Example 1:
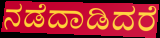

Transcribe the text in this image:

ನಡೆದಾಡಿದರೆ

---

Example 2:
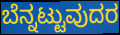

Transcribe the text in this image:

ಬೆನ್ನಟ್ಟುವುದರ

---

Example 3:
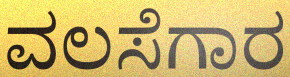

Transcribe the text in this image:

ವಲಸೆಗಾರ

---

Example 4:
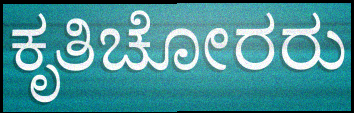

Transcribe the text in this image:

ಕೃತಿಚೋರರು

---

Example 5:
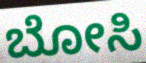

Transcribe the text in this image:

ಬೋಸಿ